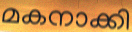
മകനാക്കി